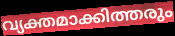
വ്യക്തമാക്കിത്തരും